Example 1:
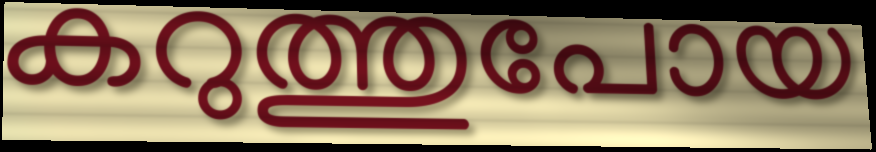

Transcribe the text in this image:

കറുത്തുപോയ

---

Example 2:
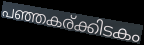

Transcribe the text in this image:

പഞ്ഞകര്ക്കിടകം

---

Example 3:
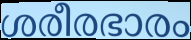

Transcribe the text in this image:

ശരീരഭാരം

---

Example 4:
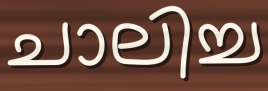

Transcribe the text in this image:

ചാലിച്ച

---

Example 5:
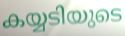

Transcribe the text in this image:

കയ്യടിയുടെ